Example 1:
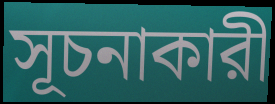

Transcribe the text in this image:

সূচনাকারী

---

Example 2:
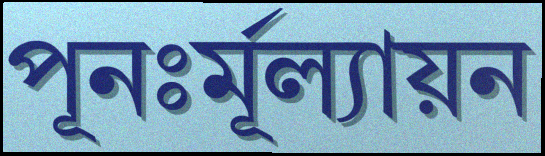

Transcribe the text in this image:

পূনঃর্মূল্যায়ন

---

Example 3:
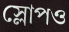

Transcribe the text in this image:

স্লোপও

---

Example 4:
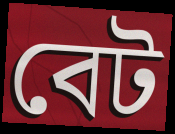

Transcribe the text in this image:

বেট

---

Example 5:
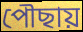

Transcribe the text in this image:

পৌছায়